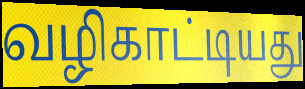
வழிகாட்டியது